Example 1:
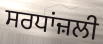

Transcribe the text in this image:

ਸਰਧਾਂਜ਼ਲੀ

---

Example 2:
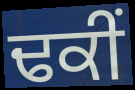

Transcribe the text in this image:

ਢਕੀਂ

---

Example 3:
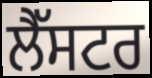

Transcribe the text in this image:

ਲੈੱਸਟਰ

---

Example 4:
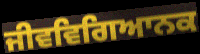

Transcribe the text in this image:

ਜੀਵਵਿਗਿਆਨਕ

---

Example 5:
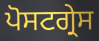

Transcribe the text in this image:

ਪੋਸਟਗ੍ਰੇਸ